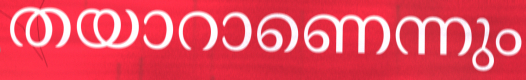
തയാറാണെന്നും